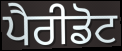
ਪੈਰੀਡੋਟ